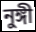
নুঙ্গী